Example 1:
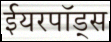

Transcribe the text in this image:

ईयरपॉड्स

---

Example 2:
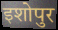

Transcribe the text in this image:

इशोपुर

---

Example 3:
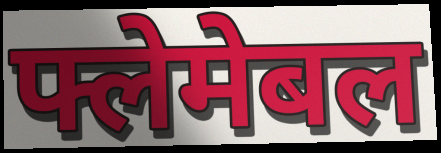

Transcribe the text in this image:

फ्लेमेबल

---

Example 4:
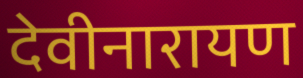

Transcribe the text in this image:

देवीनारायण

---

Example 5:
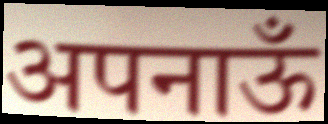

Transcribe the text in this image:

अपनाऊँ